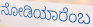
ನೋಡಿಯಾರೆಂಬ